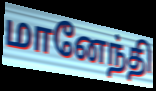
மானேந்தி